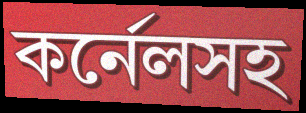
কর্নেলসহ